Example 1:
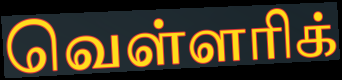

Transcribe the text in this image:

வெள்ளரிக்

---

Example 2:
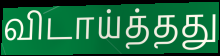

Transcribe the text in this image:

விடாய்த்தது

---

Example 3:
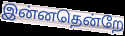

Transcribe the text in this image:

இன்னதென்றே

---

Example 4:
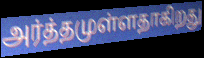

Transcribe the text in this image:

அர்த்தமுள்ளதாகிறது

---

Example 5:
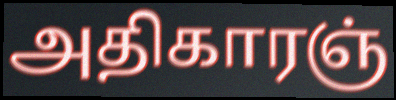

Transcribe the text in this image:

அதிகாரஞ்